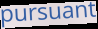
pursuant